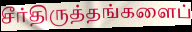
சீர்திருத்தங்களைப்